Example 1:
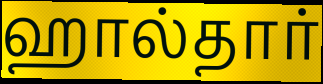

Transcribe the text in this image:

ஹால்தார்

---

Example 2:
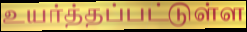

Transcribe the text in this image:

உயர்த்தப்பட்டுள்ள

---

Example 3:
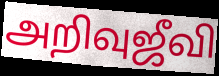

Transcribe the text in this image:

அறிவுஜீவி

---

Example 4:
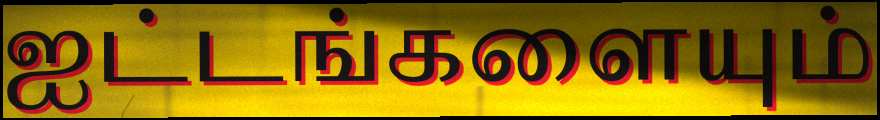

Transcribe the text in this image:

ஐட்டங்களையும்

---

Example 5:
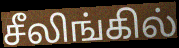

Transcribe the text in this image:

சீலிங்கில்